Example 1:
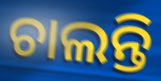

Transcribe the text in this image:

ଚାଲନ୍ତି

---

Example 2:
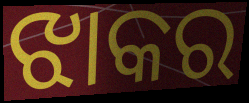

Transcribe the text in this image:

ଝାକର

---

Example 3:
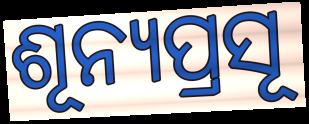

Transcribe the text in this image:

ଶୂନ୍ୟପ୍ରସୂ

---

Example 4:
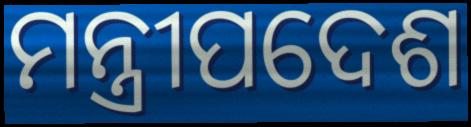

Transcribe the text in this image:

ମନ୍ତ୍ରୀପଦେଶ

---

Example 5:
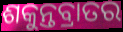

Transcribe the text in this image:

ଶକୁନ୍ତବ୍ରାତର